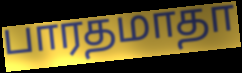
பாரதமாதா